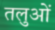
तलुओं